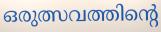
ഒരുത്സവത്തിന്റെ